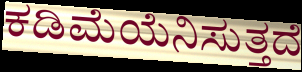
ಕಡಿಮೆಯೆನಿಸುತ್ತದೆ